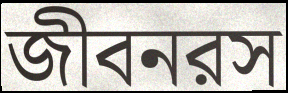
জীবনরস